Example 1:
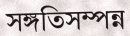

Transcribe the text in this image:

সঙ্গতিসম্পন্ন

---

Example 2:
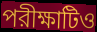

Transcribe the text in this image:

পরীক্ষাটিও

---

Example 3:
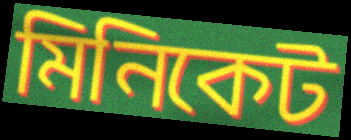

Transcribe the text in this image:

মিনিকেট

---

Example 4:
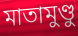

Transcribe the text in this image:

মাতামুণ্ডু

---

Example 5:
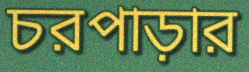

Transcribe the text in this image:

চরপাড়ার